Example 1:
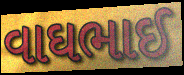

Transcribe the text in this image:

વાઘભાઈ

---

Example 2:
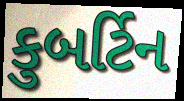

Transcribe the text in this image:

કુબર્ટિન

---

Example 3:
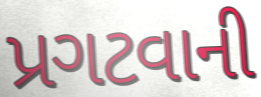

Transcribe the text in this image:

પ્રગટવાની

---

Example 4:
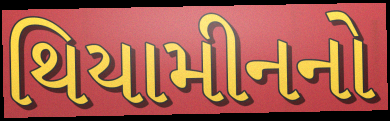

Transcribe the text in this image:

થિયામીનનો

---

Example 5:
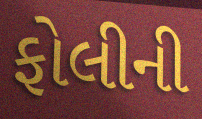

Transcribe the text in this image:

ફોલીની